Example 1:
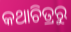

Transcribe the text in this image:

କଥାଚିତ୍ରରୁ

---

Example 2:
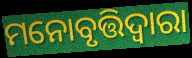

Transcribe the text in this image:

ମନୋବୃତ୍ତିଦ୍ଵାରା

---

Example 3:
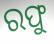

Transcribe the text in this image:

ରଫୁ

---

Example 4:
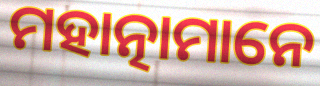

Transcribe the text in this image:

ମହାତ୍ନାମାନେ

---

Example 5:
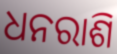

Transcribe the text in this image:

ଧନରାଶି